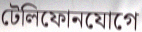
টেলিফোনযোগে